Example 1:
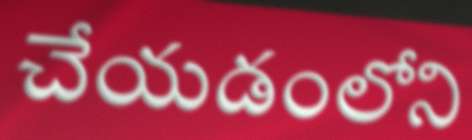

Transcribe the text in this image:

చేయడంలోని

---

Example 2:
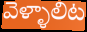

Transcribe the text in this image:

వెళ్ళాలిట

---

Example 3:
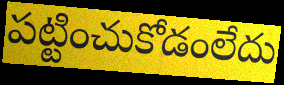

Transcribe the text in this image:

పట్టించుకోడంలేదు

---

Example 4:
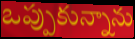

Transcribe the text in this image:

ఒప్పుకున్నాను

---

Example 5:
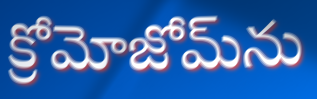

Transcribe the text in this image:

క్రోమోజోమ్‌ను